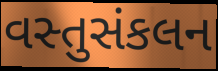
વસ્તુસંકલન